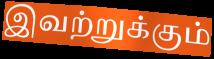
இவற்றுக்கும்